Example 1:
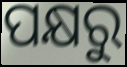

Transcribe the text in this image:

ପକ୍ଷରୁ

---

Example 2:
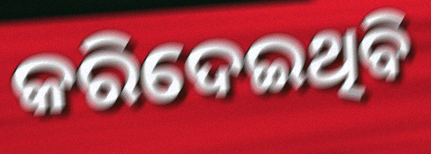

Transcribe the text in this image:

କରିଦେଇଥିବି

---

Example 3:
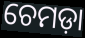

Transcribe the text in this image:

ଚେମଡ଼ା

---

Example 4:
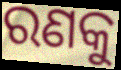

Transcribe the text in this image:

ରଣକୁ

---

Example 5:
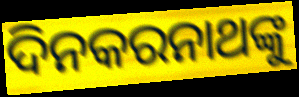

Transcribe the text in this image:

ଦିନକରନାଥଙ୍କୁ